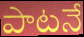
పాటనే